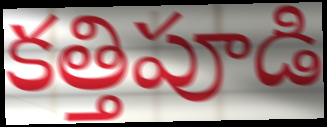
కత్తిపూడి